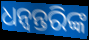
ଧନ୍ୱନ୍ତରିଙ୍କ